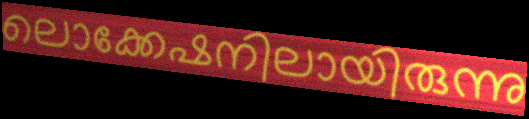
ലൊക്കേഷനിലായിരുന്നു